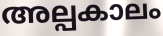
അല്പകാലം